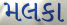
મલકા